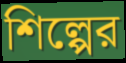
শিল্পের